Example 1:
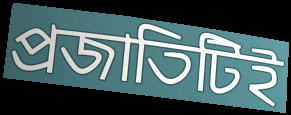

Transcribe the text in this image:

প্রজাতিটিই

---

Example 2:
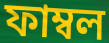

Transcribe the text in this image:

ফাম্বল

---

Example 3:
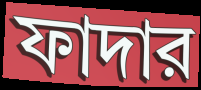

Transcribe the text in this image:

ফাদার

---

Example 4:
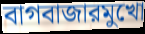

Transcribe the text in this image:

বাগবাজারমুখো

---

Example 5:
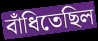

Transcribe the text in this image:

বাঁধিতেছিল